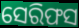
ସେରିଫସ